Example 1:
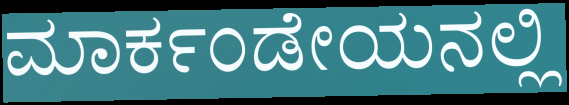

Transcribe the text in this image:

ಮಾರ್ಕಂಡೇಯನಲ್ಲಿ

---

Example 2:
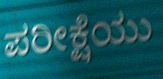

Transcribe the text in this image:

ಪರೀಕ್ಷೆಯು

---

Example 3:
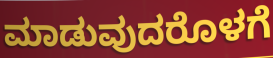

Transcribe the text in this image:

ಮಾಡುವುದರೊಳಗೆ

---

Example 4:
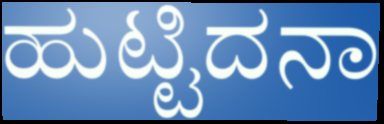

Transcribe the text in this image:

ಹುಟ್ಟಿದನಾ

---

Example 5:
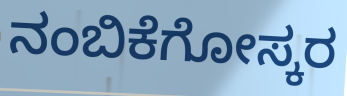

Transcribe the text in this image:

ನಂಬಿಕೆಗೋಸ್ಕರ